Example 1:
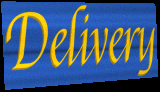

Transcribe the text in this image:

Delivery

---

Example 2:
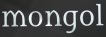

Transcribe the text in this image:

mongol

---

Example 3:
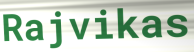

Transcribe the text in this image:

Rajvikas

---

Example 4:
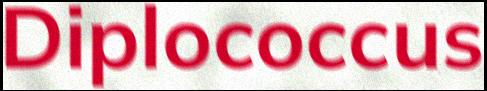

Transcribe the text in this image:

Diplococcus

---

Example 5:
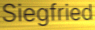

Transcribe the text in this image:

Siegfried